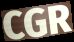
CGR